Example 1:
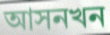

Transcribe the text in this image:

আসনখন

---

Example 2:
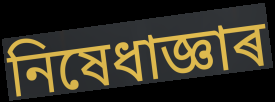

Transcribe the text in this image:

নিষেধাজ্ঞাৰ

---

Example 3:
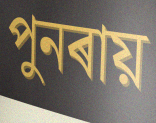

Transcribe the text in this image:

পুনৰায়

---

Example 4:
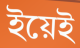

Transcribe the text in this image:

ইয়েই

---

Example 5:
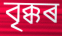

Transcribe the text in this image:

বৃক্কৰ